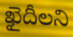
ఖైదీలని